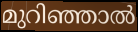
മുറിഞ്ഞാൽ